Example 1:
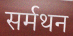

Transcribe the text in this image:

सर्मथन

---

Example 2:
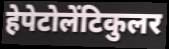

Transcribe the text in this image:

हेपेटोलेंटिकुलर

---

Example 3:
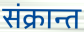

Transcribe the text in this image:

संक्रान्त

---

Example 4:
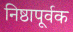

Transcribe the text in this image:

निष्ठापूर्वक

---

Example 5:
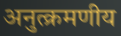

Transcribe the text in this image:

अनुत्क्रमणीय